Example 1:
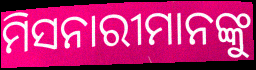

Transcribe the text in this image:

ମିସନାରୀମାନଙ୍କୁ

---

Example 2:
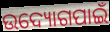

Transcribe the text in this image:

ଉଦ୍ୟୋଗପାଇଁ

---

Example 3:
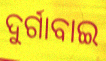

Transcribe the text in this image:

ଦୁର୍ଗାବାଇ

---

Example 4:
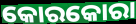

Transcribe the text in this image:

କୋରକୋରା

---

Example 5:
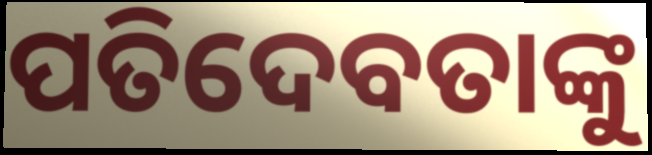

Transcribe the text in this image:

ପତିଦେବତାଙ୍କୁ